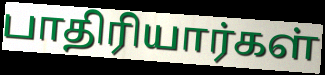
பாதிரியார்கள்